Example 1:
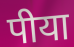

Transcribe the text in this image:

पीया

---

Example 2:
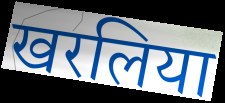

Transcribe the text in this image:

खरलिया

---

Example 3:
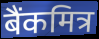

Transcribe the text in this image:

बैंकमित्र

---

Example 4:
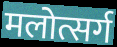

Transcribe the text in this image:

मलोत्सर्ग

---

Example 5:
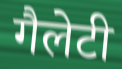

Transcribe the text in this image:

गैलेटी